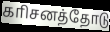
கரிசனத்தோடு